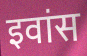
इवांस